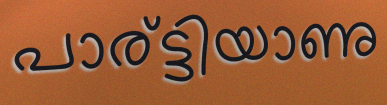
പാര്ട്ടിയാണു